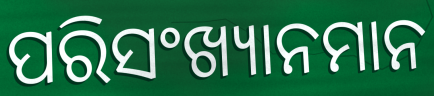
ପରିସଂଖ୍ୟାନମାନ